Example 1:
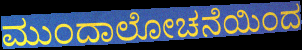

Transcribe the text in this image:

ಮುಂದಾಲೋಚನೆಯಿಂದ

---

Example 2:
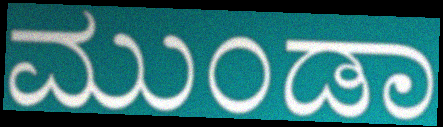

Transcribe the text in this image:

ಮುಂಡಾ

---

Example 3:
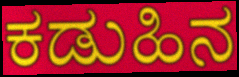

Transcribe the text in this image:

ಕಡುಹಿನ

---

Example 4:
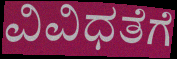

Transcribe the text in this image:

ವಿವಿಧತೆಗೆ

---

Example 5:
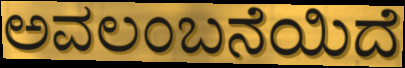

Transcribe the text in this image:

ಅವಲಂಬನೆಯಿದೆ